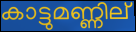
കാട്ടുമണ്ണില്